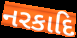
નરકાદિ